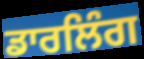
ਡਾਰਲਿੰਗ